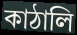
কাঠালি